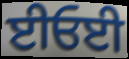
ਈਓਈ